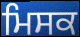
ਮਿਸਕ